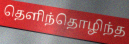
தெளிந்தொழிந்த